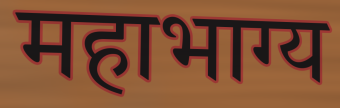
महाभाग्य